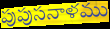
పుపుసనాళము